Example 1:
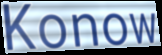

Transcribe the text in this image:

Konow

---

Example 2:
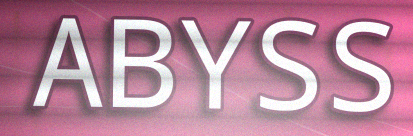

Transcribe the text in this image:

ABYSS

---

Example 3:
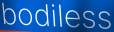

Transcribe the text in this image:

bodiless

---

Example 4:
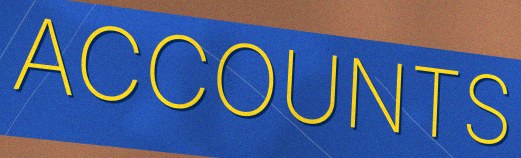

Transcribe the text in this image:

ACCOUNTS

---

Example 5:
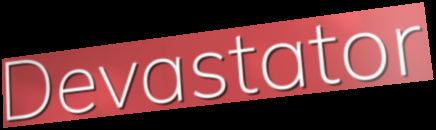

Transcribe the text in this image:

Devastator